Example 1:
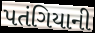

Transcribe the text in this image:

પતંગિયાની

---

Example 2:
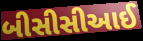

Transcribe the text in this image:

બીસીસીઆઈ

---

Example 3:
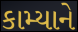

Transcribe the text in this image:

કામ્યાને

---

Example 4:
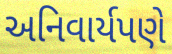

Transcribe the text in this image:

અનિવાર્યપણે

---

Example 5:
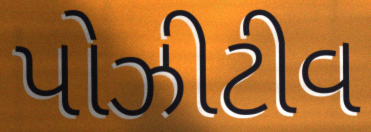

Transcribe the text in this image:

પોઝીટીવ